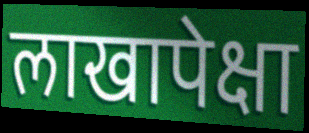
लाखापेक्षा